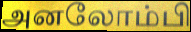
அனலோம்பி